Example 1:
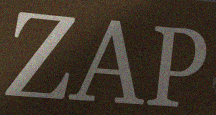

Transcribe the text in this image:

ZAP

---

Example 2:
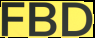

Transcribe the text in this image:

FBD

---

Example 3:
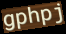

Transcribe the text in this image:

gphpj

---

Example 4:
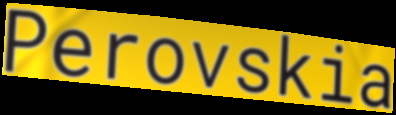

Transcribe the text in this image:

Perovskia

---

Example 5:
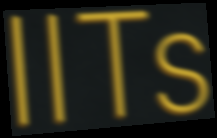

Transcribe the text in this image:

IITs